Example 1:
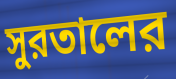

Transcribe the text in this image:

সুরতালের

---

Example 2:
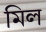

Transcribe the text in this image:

মিল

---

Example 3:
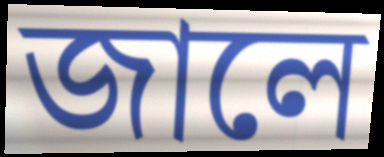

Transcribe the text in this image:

জালে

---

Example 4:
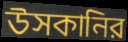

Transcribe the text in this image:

উসকানির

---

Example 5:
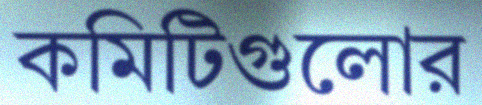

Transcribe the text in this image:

কমিটিগুলোর